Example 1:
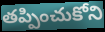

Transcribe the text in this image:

తప్పించుకోని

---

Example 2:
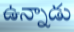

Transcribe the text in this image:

ఉన్నాడు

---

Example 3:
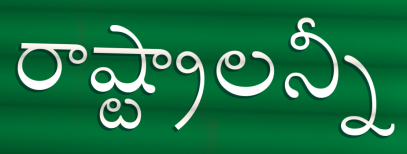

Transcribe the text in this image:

రాష్ట్రాలన్నీ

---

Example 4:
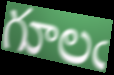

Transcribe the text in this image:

గూలఁ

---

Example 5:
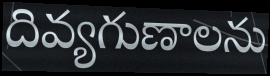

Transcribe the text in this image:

దివ్యగుణాలను